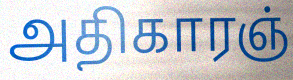
அதிகாரஞ்